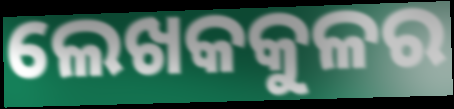
ଲେଖକକୁଳର